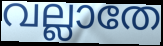
വല്ലാതേ